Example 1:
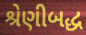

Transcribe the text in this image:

શ્રેણીબદ્ધ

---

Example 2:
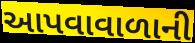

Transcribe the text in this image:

આપવાવાળાની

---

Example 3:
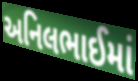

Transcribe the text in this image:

અનિલભાઈમાં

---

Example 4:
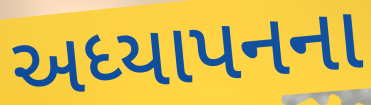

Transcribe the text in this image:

અધ્યાપનના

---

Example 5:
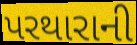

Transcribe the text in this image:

પરથારાની